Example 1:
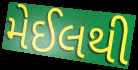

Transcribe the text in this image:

મેઈલથી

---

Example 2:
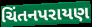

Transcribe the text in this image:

ચિંતનપરાયણ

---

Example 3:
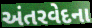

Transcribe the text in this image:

અંતરવેદના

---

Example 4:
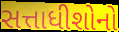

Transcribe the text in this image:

સત્તાધીશોનો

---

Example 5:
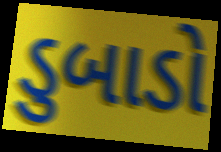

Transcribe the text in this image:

ડુબાડો